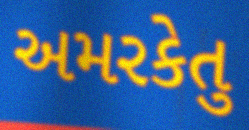
અમરકેતુ